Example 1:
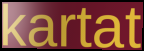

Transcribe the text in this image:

kartat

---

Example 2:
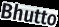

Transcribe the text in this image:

Bhutto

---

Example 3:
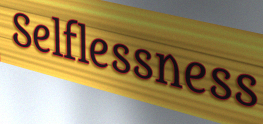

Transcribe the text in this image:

Selflessness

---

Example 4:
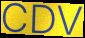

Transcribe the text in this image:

CDV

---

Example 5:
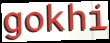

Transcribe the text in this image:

gokhi